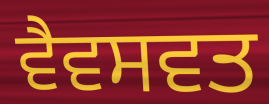
ਵੈਵਸਵਤ